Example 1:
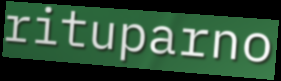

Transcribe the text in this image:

rituparno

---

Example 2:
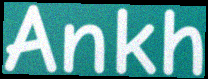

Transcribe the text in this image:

Ankh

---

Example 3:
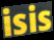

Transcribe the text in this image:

isis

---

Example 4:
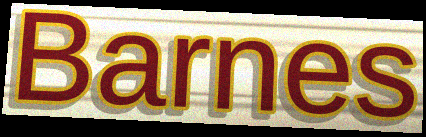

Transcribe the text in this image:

Barnes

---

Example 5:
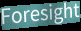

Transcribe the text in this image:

Foresight